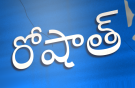
రోషాత్